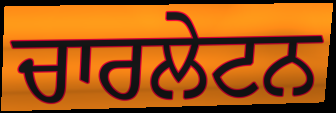
ਚਾਰਲੇਟਨ